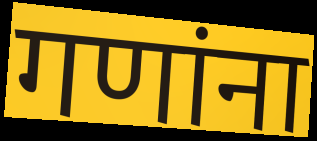
गणांना